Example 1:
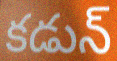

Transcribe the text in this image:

కడున్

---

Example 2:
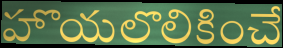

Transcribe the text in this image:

హొయలొలికించే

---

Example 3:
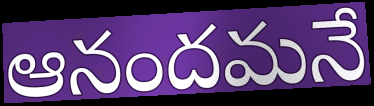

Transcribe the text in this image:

ఆనందమనే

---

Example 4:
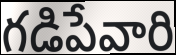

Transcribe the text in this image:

గడిపేవారి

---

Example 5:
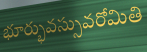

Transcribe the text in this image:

భూర్భువస్సువరోమితి